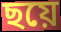
ছয়ে